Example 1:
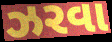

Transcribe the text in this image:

ઝરવા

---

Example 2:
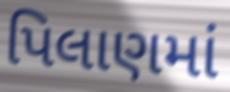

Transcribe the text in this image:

પિલાણમાં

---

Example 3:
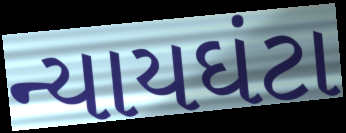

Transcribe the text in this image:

ન્યાયઘંટા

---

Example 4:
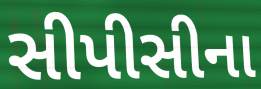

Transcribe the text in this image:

સીપીસીના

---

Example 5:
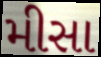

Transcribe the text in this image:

મીસા